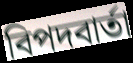
বিপদবার্তা